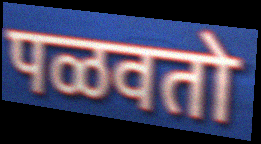
पळवतो